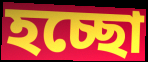
হচ্ছো